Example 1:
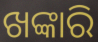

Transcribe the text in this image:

ଖଙ୍କାରି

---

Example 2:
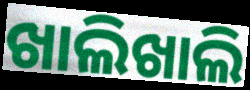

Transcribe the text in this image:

ଖାଲିଖାଲି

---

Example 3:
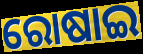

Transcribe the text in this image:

ରୋଷାଇ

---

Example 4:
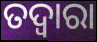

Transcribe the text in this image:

ତଦ୍ୱାରା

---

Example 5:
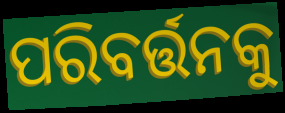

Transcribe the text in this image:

ପରିବର୍ତ୍ତନକୁ